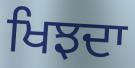
ਖਿਝਦਾ